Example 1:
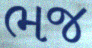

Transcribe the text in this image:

ભજ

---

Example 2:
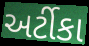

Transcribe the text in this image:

અર્ટીકા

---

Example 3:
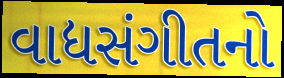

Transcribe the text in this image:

વાદ્યસંગીતનો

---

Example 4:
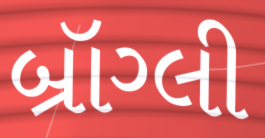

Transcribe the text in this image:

બ્રૉગ્લી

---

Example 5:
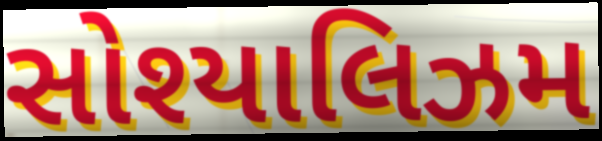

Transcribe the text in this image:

સોશ્યાલિઝમ